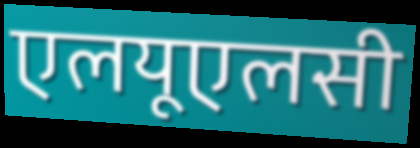
एलयूएलसी